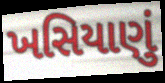
ખસિયાણું